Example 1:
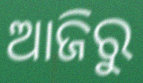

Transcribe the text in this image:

ଆଜିରୁ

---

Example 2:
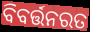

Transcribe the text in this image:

ବିବର୍ତ୍ତନରତ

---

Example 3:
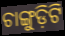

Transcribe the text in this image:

ଚାଙ୍ଗୁଡ଼ିଟି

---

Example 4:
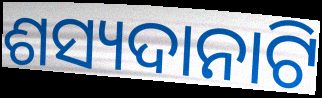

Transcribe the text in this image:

ଶସ୍ୟଦାନାଟି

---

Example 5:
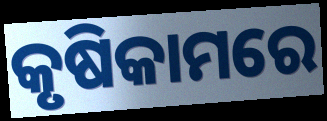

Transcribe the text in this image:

କୃଷିକାମରେ